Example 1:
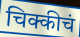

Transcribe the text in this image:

चिक्कीचं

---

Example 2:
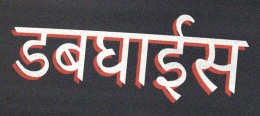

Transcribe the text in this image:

डबघाईस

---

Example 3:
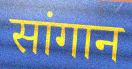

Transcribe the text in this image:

सांगान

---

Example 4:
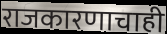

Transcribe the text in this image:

राजकारणाचाही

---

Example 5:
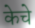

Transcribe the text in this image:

केचे